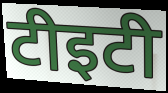
टीइटी